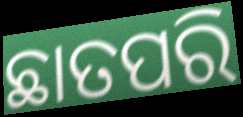
ଛାତପରି